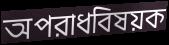
অপরাধবিষয়ক